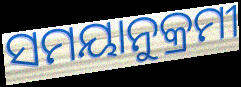
ସମୟାନୁକ୍ରମୀ